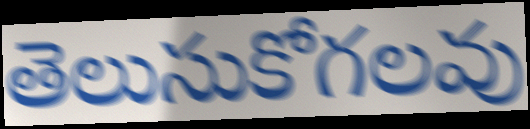
తెలుసుకోగలవు